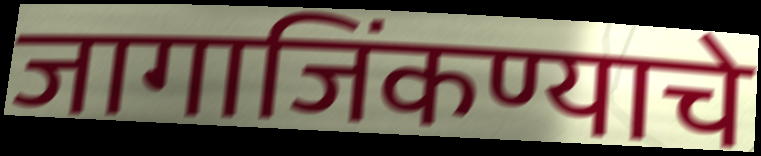
जागाजिंकण्याचे